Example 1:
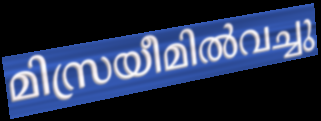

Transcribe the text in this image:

മിസ്രയീമിൽവച്ചു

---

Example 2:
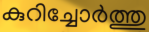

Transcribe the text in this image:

കുറിച്ചോർത്തു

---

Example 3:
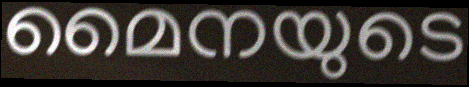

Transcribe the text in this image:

മൈനയുടെ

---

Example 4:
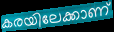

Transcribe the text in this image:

കരയിലേക്കാണ്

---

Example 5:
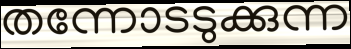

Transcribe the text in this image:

തന്നോടടുക്കുന്ന